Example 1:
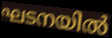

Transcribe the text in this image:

ഘടനയിൽ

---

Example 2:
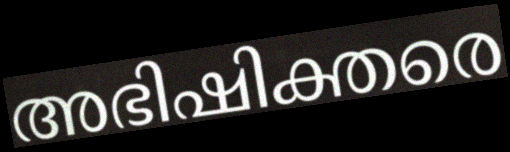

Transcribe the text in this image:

അഭിഷിക്തരെ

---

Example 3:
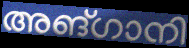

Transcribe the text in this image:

അങ്ഗാനി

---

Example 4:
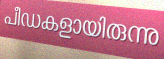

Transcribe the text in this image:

പീഡകളായിരുന്നു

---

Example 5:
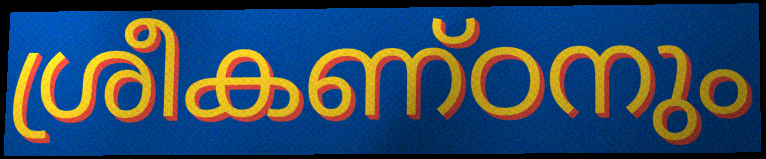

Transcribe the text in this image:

ശ്രീകണ്ഠനും